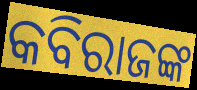
କବିରାଜଙ୍କ